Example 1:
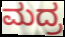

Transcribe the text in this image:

ಮದ್ರ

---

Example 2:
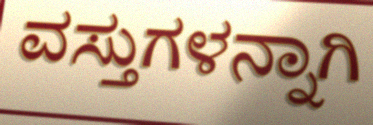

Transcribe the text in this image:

ವಸ್ತುಗಳನ್ನಾಗಿ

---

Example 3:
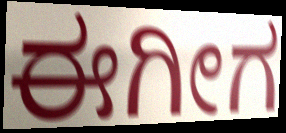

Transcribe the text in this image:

ಈಗೀಗ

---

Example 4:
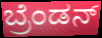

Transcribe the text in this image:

ಬ್ರೆಂಡನ್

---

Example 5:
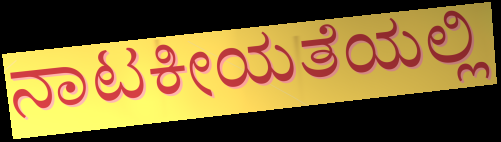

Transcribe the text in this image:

ನಾಟಕೀಯತೆಯಲ್ಲಿ